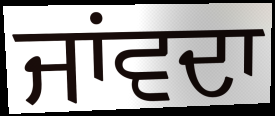
ਜਾਂਵਦਾ